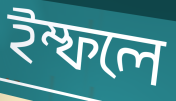
ইম্ফলে